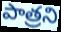
పాత్రని